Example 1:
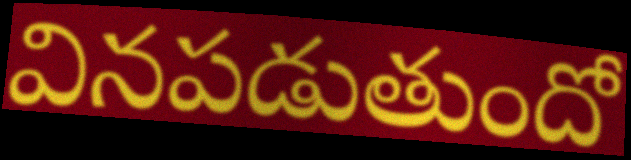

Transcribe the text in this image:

వినపడుతుందో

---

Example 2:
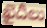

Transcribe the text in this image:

ఖైదీలు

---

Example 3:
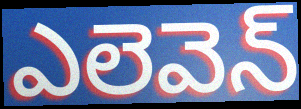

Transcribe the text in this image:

ఎలెవెన్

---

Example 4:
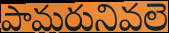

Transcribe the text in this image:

పామరునివలె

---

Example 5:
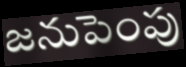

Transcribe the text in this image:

జనుపెంపు